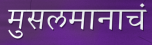
मुसलमानाचं